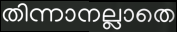
തിന്നാനല്ലാതെ